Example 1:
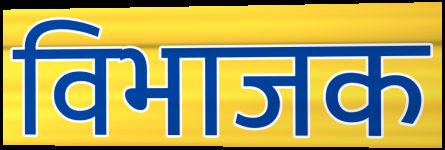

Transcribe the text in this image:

विभाजक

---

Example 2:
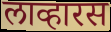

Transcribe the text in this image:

लाव्हारस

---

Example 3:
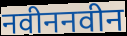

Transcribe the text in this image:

नवीननवीन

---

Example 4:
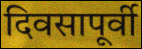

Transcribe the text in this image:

दिवसापूर्वी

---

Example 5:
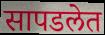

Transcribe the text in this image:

सापडलेत